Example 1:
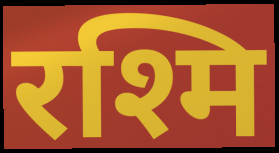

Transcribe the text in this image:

रश्मि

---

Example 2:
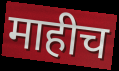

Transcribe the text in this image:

माहीच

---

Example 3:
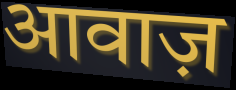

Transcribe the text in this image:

आवाज़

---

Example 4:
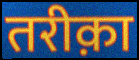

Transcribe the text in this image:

तरीक़ा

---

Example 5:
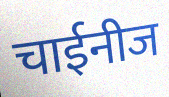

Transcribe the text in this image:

चाईनीज